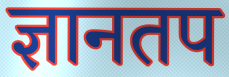
ज्ञानतप